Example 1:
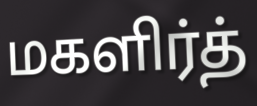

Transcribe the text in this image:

மகளிர்த்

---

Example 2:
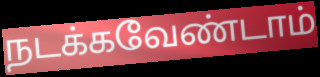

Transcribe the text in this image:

நடக்கவேண்டாம்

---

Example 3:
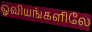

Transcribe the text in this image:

ஓவியங்களிலே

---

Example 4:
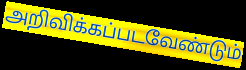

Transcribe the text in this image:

அறிவிக்கப்படவேண்டும்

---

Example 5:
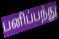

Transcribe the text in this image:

பனிப்பந்து